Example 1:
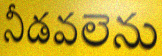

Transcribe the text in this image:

నీడవలెను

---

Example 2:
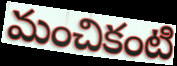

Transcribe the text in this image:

మంచికంటి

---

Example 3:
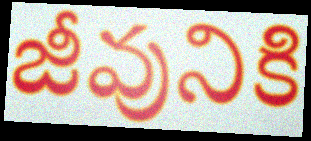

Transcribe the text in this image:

జీవునికి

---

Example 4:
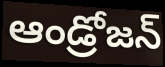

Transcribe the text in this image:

ఆండ్రోజన్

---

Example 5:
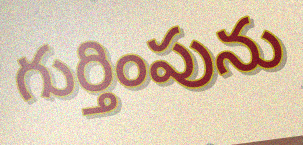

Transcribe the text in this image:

గుర్తింపును